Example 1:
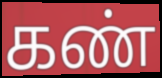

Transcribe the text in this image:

கண்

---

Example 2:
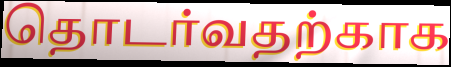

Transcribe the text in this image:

தொடர்வதற்காக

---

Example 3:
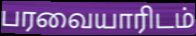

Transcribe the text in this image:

பரவையாரிடம்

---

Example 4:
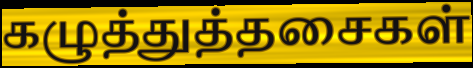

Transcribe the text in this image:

கழுத்துத்தசைகள்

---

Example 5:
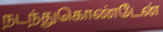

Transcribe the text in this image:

நடந்துகொண்டேன்